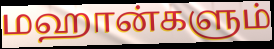
மஹான்களும்